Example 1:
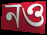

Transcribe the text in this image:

নও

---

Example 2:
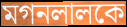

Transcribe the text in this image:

মগনলালকে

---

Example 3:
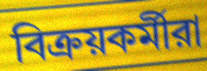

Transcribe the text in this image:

বিক্রয়কর্মীরা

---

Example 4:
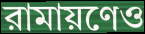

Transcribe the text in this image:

রামায়ণেও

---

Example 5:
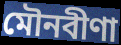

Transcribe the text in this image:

মৌনবীণা